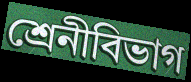
শ্রেনীবিভাগ